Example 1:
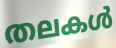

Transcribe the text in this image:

തലകൾ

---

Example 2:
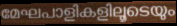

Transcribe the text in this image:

മേഘപാളികളിലൂടെയും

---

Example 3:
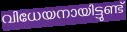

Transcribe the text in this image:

വിധേയനായിട്ടുണ്ട്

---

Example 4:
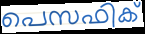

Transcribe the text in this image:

പെസഫിക്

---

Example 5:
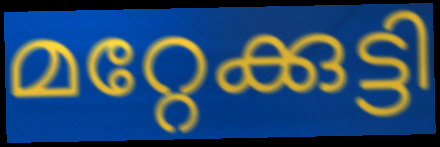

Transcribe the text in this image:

മറ്റേക്കുട്ടി